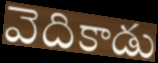
వెదికాడు